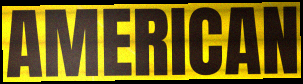
AMERICAN